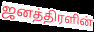
ஜனத்திரளின்